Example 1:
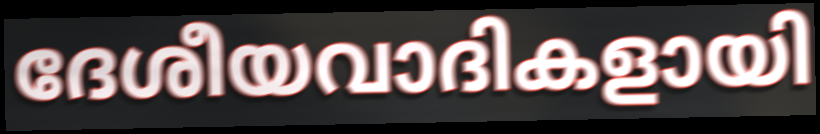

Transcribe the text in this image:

ദേശീയവാദികളായി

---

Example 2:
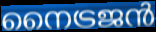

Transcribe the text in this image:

നൈട്രജൻ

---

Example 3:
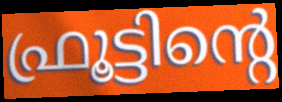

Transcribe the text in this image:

ഫ്രൂട്ടിന്റെ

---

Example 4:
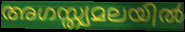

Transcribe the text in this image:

അഗസ്ത്യമലയിൽ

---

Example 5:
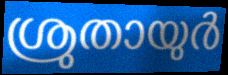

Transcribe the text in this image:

ശ്രുതായുർ